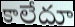
కాలేదూ